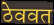
ठेववत